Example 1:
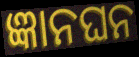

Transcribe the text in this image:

ଜ୍ଞାନଘନ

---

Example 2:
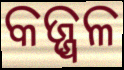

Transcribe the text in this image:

କଜ୍ଜ୍ୱଳ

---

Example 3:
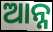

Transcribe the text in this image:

ଆନ୍ନ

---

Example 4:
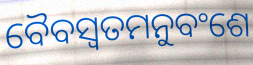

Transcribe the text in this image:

ବୈବସ୍ଵତମନୁବଂଶେ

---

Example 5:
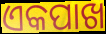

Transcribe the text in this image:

ଏକପାଖ